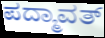
ಪದ್ಮಾವತ್